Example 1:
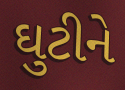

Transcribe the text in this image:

ઘુટીને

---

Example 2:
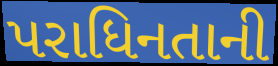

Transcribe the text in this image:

પરાધિનતાની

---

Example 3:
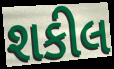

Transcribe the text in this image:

શકીલ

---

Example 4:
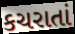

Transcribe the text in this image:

કચરાતાં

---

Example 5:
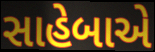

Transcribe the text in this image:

સાહેબાએ